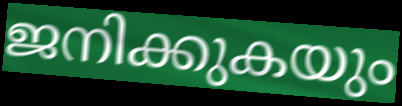
ജനിക്കുകയും